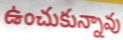
ఉంచుకున్నావు